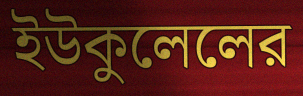
ইউকুলেলের